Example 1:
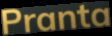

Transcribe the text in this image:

Pranta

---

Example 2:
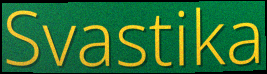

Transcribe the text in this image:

Svastika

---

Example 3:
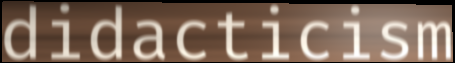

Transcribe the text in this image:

didacticism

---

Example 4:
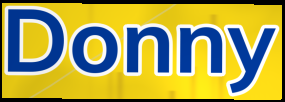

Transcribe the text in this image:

Donny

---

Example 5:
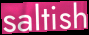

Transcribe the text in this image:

saltish